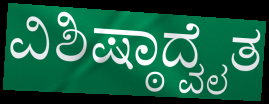
ವಿಶಿಷ್ಠಾದ್ವೈತ